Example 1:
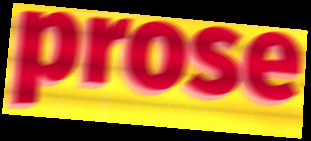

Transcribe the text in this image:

prose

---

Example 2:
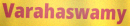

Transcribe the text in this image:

Varahaswamy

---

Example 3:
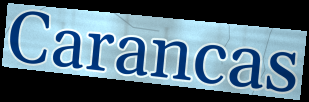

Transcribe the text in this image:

Carancas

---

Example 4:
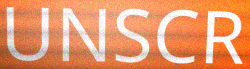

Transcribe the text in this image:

UNSCR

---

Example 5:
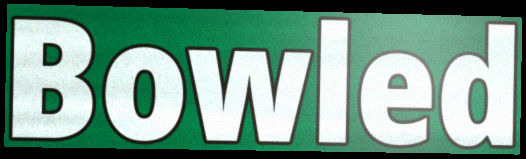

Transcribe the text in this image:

Bowled